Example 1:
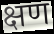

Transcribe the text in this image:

क्षण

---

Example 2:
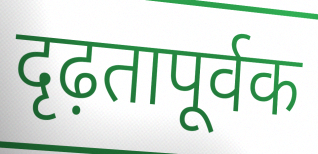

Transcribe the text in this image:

दृढ़तापूर्वक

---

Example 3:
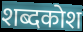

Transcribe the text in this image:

शब्दकोश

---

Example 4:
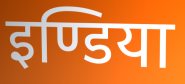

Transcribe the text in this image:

इण्डिया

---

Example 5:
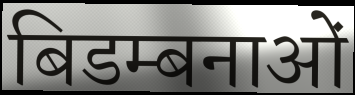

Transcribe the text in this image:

बिडम्बनाओं